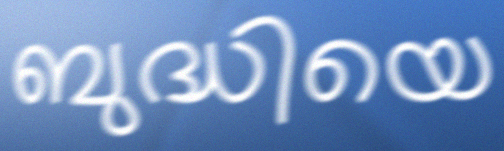
ബുദ്ധിയെ